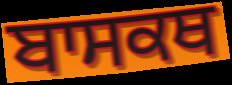
ਬਾਸਕਥ